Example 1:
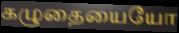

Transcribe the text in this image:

கழுதையையோ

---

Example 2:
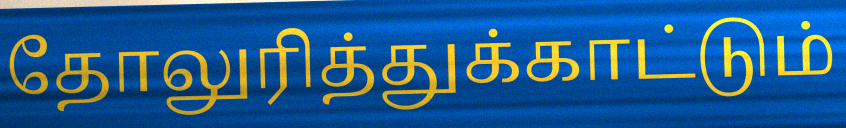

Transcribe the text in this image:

தோலுரித்துக்காட்டும்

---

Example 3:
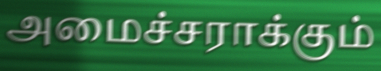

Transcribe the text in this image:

அமைச்சராக்கும்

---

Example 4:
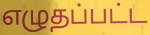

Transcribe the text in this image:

எழுதப்பட்ட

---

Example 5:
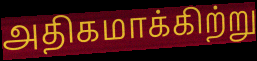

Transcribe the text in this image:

அதிகமாக்கிற்று